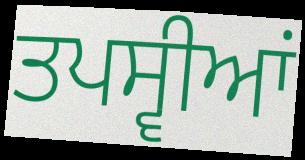
ਤਪਸ੍ਵੀਆਂ